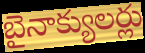
బైనాక్యులర్లు